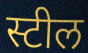
स्टील